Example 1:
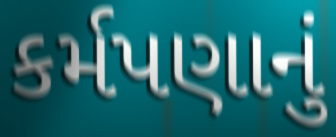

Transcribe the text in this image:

કર્મપણાનું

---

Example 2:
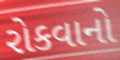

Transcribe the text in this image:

રોકવાનો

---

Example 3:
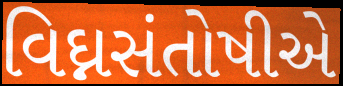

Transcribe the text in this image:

વિઘ્નસંતોષીએ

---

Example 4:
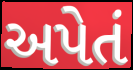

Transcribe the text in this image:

અપેતં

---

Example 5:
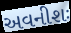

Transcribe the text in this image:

અવનીશઃ